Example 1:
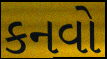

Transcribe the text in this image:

કનવો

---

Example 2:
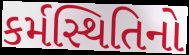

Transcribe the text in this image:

કર્મસ્થિતિનો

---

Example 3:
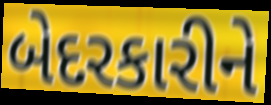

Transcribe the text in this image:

બેદરકારીને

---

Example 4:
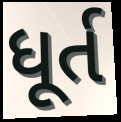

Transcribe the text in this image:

ધૂર્ત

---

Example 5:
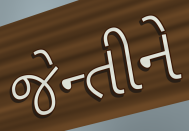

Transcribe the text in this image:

જેન્તીને